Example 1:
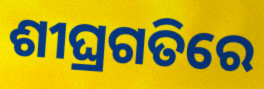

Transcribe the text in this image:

ଶୀଘ୍ରଗତିରେ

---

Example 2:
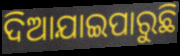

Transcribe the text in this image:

ଦିଆଯାଇପାରୁଛି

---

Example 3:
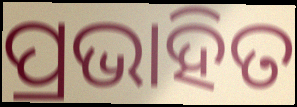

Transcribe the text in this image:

ପ୍ରଭାହିତ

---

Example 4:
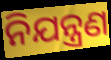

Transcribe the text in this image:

ନିଯନ୍ତ୍ରଣ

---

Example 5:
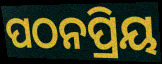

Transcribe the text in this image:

ପଠନପ୍ରିୟ